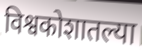
विश्वकोशातल्या